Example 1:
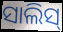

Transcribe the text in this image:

ସାଲିସ୍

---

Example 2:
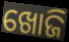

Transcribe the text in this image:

ଖୋଜି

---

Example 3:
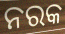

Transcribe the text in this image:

ନରକ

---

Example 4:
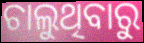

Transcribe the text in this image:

ଚାଲୁଥିବାରୁ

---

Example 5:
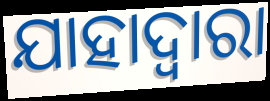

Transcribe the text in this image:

ଯାହାଦ୍ୱାରା